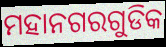
ମହାନଗରଗୁଡିକ